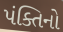
પંક્તિનો